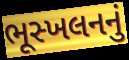
ભૂસ્ખલનનું